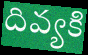
దివ్యకి